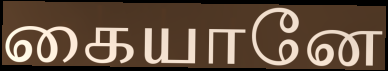
கையானே